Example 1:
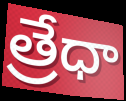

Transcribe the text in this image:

త్రేధా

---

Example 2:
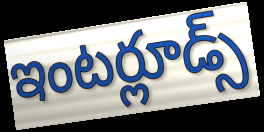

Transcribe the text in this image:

ఇంటర్లూడ్స్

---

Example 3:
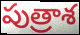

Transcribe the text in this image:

పుత్రాశ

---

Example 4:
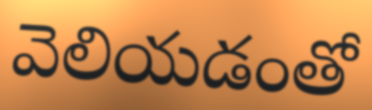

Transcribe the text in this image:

వెలియడంతో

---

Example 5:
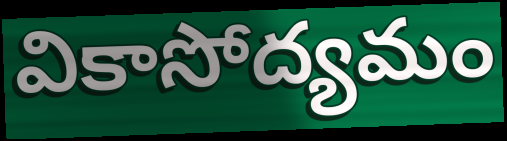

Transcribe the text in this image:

వికాసోద్యమం